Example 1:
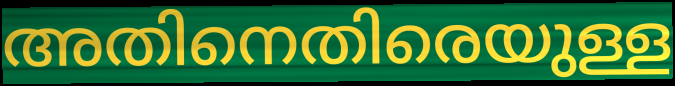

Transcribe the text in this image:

അതിനെതിരെയുള്ള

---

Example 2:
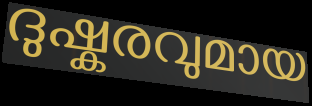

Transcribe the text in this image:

ദുഷ്കരവുമായ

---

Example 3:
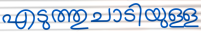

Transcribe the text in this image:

എടുത്തുചാടിയുള്ള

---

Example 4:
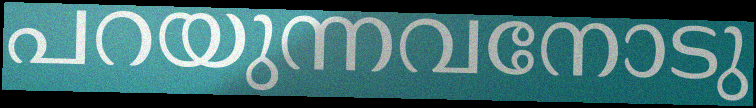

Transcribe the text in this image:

പറയുന്നവനോടു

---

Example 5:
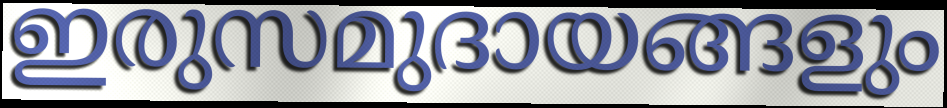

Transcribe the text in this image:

ഇരുസമുദായങ്ങളും